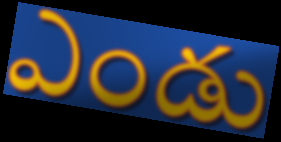
ఎండు